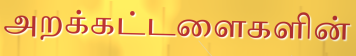
அறக்கட்டளைகளின்